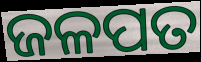
ଜଳପତ